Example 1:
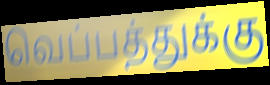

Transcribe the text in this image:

வெப்பத்துக்கு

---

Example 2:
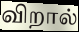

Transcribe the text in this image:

விறால்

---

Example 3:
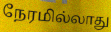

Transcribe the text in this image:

நேரமில்லாது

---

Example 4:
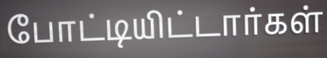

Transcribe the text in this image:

போட்டியிட்டார்கள்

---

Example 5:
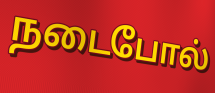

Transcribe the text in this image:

நடைபோல்